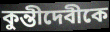
কুন্তীদেবীকে